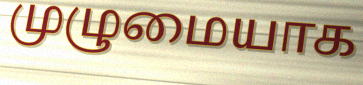
முழுமையாக